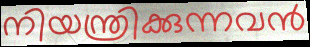
നിയന്ത്രിക്കുന്നവൻ